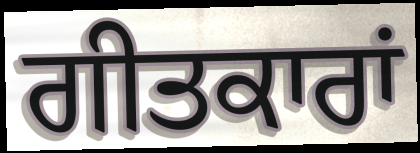
ਗੀਤਕਾਰਾਂ